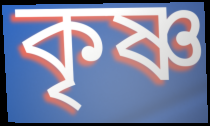
কৃষ্ণ